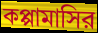
কপ্পামাসির